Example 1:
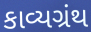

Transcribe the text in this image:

કાવ્યગ્રંથ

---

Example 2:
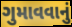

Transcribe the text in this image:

ગુમાવવાનું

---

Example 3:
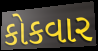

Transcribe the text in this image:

કોકવાર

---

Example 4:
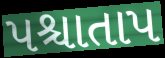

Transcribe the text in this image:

પશ્ચાતાપ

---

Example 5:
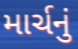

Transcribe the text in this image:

માર્ચનું